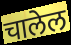
चालेल